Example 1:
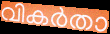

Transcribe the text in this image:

വികർതാ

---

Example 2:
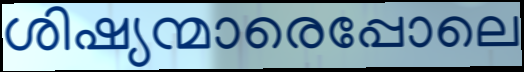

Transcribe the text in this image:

ശിഷ്യന്മാരെപ്പോലെ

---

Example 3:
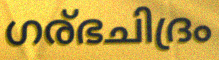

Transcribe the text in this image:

ഗര്ഭചിദ്രം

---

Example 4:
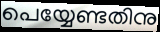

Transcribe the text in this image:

പെയ്യേണ്ടതിനു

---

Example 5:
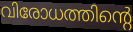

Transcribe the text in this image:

വിരോധത്തിന്റെ